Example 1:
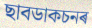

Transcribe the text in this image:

ছাবডাকচনৰ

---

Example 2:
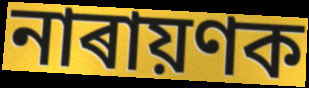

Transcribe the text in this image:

নাৰায়ণক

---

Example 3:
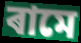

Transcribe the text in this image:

ৰামে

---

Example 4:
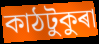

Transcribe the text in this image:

কাঠটুকুৰা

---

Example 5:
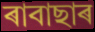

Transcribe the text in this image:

ৰাবাছাৰ